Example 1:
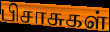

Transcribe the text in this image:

பிசாசுகள்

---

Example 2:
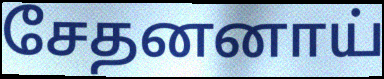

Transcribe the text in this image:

சேதனனாய்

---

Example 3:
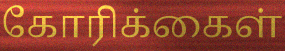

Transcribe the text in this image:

கோரிக்கைள்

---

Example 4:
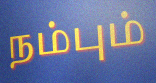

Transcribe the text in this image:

நம்பும்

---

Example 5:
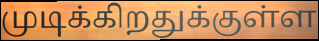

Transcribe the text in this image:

முடிக்கிறதுக்குள்ள